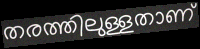
തരത്തിലുള്ളതാണ്